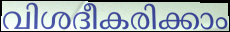
വിശദീകരിക്കാം